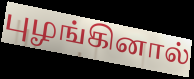
புழங்கினால்